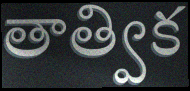
తాత్విక